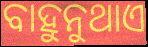
ବାହୁନୁଥାଏ